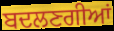
ਬਦਲਣਗੀਆਂ